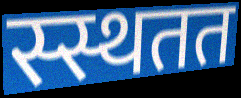
स्स्थतत